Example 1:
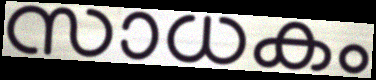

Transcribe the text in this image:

സാധകം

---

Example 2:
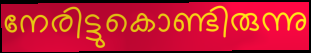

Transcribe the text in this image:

നേരിട്ടുകൊണ്ടിരുന്നു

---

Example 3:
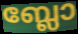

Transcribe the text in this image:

ബ്ലോ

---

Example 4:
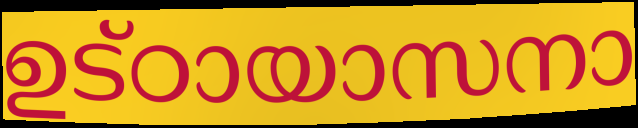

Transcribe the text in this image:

ഉട്ഠായാസനാ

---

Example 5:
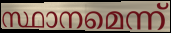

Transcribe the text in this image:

സ്ഥാനമെന്ന്